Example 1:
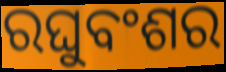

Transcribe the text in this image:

ରଘୁବଂଶର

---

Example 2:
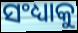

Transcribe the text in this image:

ସଂଧ୍ୟାକୁ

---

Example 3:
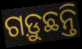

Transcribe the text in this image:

ଗଡ଼ୁଛନ୍ତି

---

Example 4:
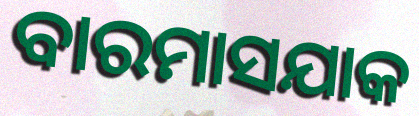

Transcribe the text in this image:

ବାରମାସଯାକ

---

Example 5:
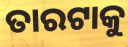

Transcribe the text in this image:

ତାରଟାକୁ